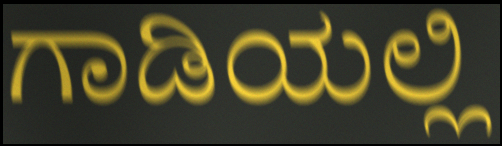
ಗಾಡಿಯಲ್ಲಿ